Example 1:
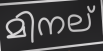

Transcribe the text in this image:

മിനല്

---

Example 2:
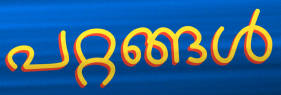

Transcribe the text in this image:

പറ്റങ്ങൾ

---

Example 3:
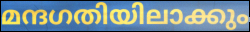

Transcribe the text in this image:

മന്ദഗതിയിലാക്കും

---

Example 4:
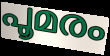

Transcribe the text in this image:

പൂമരം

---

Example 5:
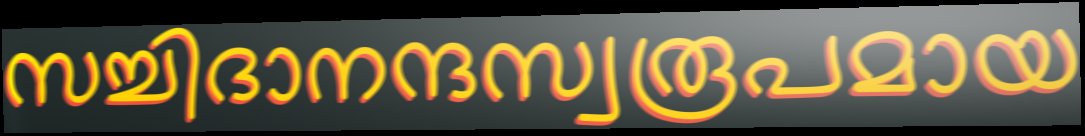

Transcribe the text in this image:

സച്ചിദാനന്ദസ്വരൂപമായ